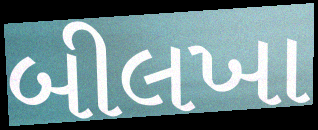
બીલખા